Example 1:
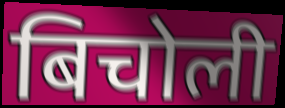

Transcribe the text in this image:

बिचोली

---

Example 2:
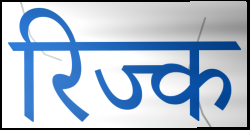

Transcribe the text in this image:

रिज्क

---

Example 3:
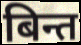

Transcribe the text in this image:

बिन्त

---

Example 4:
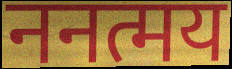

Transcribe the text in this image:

ननत्मय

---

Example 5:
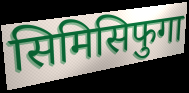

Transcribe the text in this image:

सिमिसिफुगा